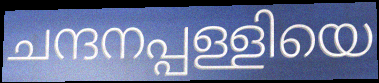
ചന്ദനപ്പള്ളിയെ